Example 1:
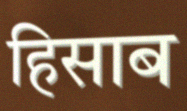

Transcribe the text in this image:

हिसाब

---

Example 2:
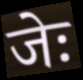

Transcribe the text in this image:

जेः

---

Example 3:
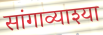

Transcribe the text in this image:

सांगाव्याश्या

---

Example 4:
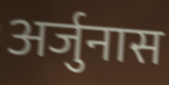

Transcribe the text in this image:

अर्जुनास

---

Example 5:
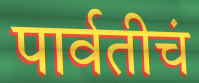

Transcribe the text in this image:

पार्वतीचं